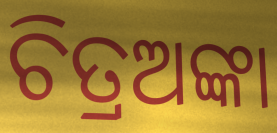
ଚିତ୍ରଅଙ୍କା